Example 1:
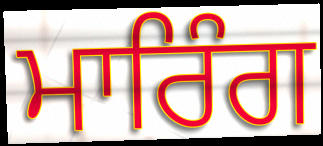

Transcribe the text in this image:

ਮਾਰਿੰਗ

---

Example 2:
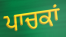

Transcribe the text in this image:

ਪਾਚਕਾਂ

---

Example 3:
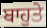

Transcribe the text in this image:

ਬਾਹੁਤੇ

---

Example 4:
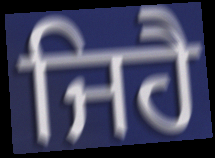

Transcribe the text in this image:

ਜਿਹੈ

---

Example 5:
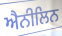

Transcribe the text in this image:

ਐਨੀਲਿਨ